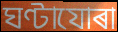
ঘণ্টাযোৰা